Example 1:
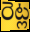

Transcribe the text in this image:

రెట్ల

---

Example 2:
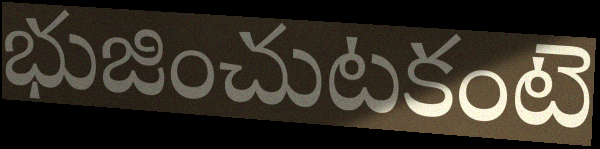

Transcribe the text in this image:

భుజించుటకంటె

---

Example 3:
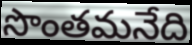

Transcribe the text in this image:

సొంతమనేది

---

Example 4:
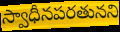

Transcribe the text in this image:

స్వాధీనపరతునని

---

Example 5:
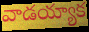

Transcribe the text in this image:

వాడయ్యాక